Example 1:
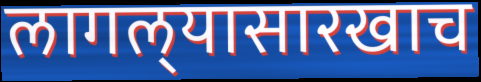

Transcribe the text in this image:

लागल्यासारखाच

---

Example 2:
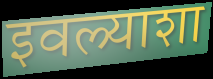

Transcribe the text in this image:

इवल्याशा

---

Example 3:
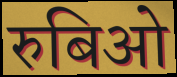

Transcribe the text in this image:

रुबिओ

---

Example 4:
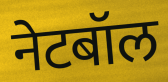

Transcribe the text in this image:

नेटबॉल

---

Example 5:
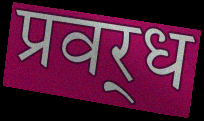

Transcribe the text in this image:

प्रवर्ध